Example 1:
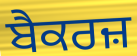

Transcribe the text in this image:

ਬੈਕਰਜ਼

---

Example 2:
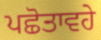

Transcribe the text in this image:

ਪਛੋਤਾਵਹੇ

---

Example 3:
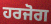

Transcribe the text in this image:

ਹਰਜੋਗ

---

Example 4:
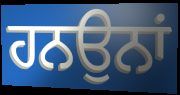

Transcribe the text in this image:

ਹਨਉਨਾਂ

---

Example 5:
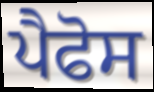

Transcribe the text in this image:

ਪੈਫੋਸ